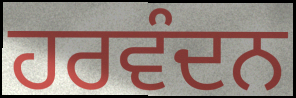
ਹਰਵੰਦਨ